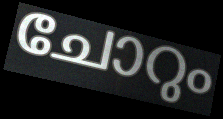
ചോറും